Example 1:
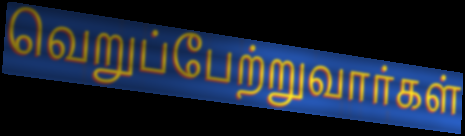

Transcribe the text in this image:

வெறுப்பேற்றுவார்கள்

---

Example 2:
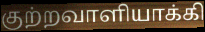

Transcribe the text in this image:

குற்றவாளியாக்கி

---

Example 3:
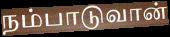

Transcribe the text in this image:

நம்பாடுவான்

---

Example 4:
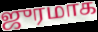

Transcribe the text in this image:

ஜுரமாக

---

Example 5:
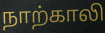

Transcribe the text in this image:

நாற்காலி